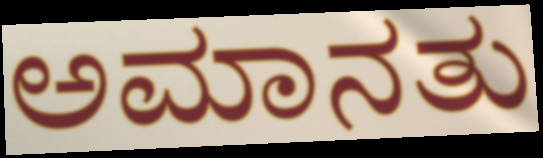
ಅಮಾನತು